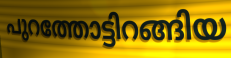
പുറത്തോട്ടിറങ്ങിയ